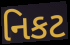
નિકટ